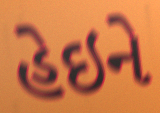
હેઇને